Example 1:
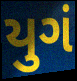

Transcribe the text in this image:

યુગં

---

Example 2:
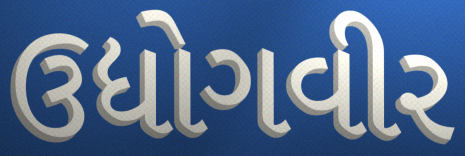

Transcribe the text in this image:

ઉદ્યોગવીર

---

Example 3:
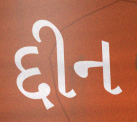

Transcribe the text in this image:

દ્દીન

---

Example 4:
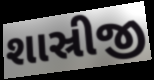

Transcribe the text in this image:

શાસ્રીજી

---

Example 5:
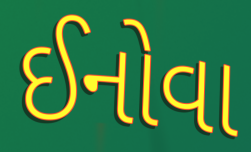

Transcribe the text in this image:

ઈનોવા